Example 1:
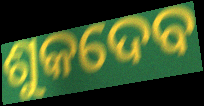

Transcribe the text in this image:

ଶୁକଦେବ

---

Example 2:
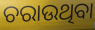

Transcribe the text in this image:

ଚରାଉଥିବା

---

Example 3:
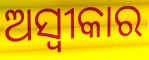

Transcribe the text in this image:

ଅସ୍ୱୀକାର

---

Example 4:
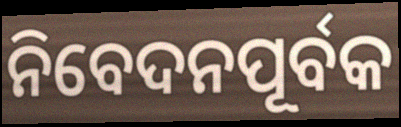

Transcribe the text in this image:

ନିବେଦନପୂର୍ବକ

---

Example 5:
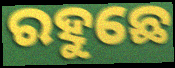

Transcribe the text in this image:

ରହୁଛେ